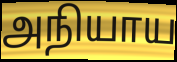
அநியாய